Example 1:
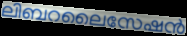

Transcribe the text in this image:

ലിബറലൈസേഷൻ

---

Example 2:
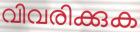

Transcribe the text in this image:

വിവരിക്കുക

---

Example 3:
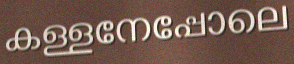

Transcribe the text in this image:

കള്ളനേപ്പോലെ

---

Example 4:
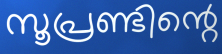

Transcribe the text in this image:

സൂപ്രണ്ടിന്റെ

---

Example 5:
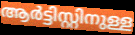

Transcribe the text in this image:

ആർട്ടിസ്റ്റിനുള്ള